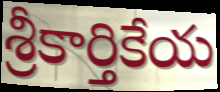
శ్రీకార్తికేయ